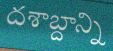
దశాబ్దాన్ని